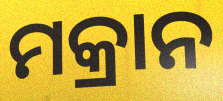
ମକ୍ରାନ